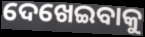
ଦେଖେଇବାକୁ